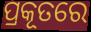
ପ୍ରକୂତରେ